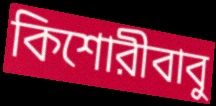
কিশোরীবাবু